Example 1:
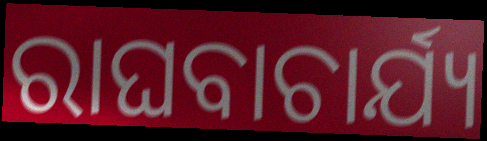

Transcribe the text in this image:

ରାଘବାଚାର୍ଯ୍ୟ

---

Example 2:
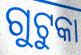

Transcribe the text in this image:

ଗୁଟୁକା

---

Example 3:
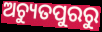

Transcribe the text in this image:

ଅଚ୍ୟୁତପୁରରୁ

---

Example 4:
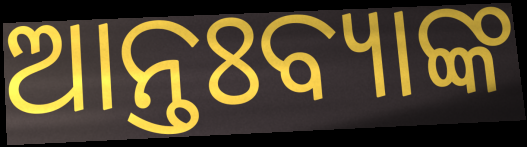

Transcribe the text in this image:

ଆନ୍ତଃବ୍ୟାଙ୍କ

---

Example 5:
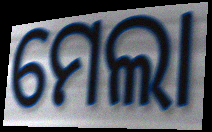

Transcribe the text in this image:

ମେଲା